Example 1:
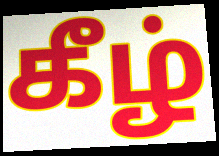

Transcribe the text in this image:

கீழ்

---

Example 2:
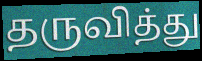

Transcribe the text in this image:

தருவித்து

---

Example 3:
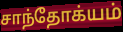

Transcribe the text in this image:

சாந்தோக்யம்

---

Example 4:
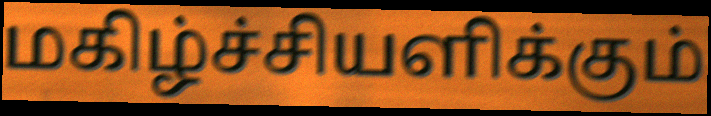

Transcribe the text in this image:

மகிழ்ச்சியளிக்கும்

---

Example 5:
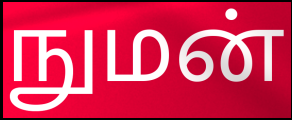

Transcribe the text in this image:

நுமன்